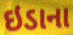
ઇડાના